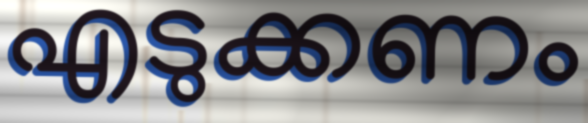
എടുക്കണം